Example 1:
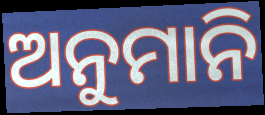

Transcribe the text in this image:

ଅନୁମାନି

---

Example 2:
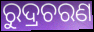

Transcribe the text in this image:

ରୁଦ୍ରଚରଣ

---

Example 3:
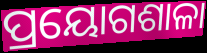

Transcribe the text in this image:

ପ୍ରୟୋଗଶାଳା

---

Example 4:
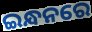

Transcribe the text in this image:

ଇନ୍ଧନରେ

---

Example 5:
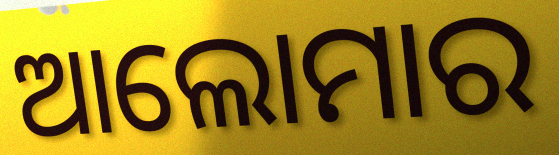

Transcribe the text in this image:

ଆଲୋମାର